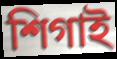
শিগাই